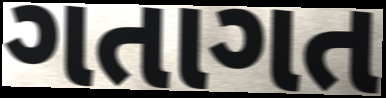
ગતાગત